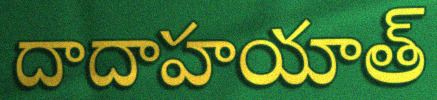
దాదాహయాత్